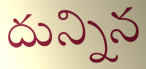
దున్నిన